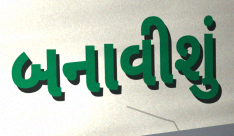
બનાવીશું